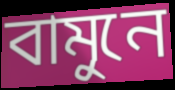
বামুনে